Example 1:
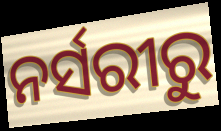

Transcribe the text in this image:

ନର୍ସରୀରୁ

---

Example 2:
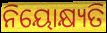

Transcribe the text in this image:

ନିୟୋକ୍ଷ୍ୟତି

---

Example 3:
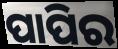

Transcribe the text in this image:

ପାପିର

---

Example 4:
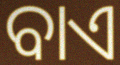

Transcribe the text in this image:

ବାଏ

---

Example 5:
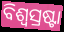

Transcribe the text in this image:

ବିଶ୍ୱସ୍ରଷ୍ଟା